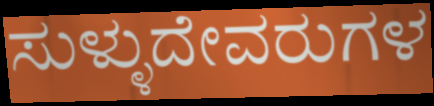
ಸುಳ್ಳುದೇವರುಗಳ